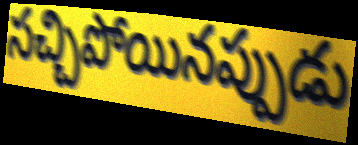
సచ్చిపోయినప్పుడు